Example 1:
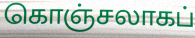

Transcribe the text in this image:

கொஞ்சலாகப்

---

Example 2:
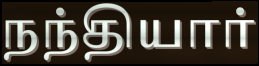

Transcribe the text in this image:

நந்தியார்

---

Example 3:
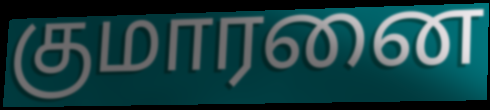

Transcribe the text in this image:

குமாரனை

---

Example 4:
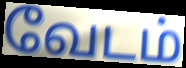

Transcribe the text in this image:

வேடம்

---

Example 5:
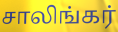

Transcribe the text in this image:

சாலிங்கர்